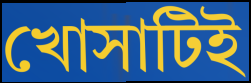
খোসাটিই